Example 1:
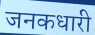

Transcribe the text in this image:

जनकधारी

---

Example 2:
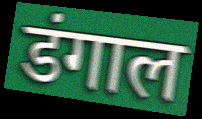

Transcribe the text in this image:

डंगाल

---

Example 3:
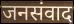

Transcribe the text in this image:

जनसंवाद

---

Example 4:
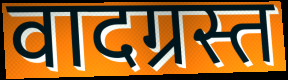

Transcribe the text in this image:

वादग्रस्त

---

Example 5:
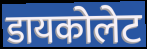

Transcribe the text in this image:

डायकोलेट